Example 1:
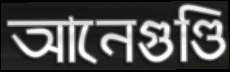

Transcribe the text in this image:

আনেগুণ্ডি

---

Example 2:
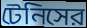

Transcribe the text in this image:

টেনিসের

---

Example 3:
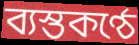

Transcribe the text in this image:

ব্যস্তকণ্ঠে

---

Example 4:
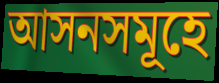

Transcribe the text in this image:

আসনসমূহে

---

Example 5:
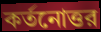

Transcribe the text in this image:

কর্তনোত্তর